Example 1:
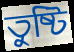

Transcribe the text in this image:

তুষ্টি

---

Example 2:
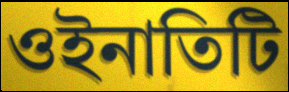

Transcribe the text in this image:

ওইনাতিটি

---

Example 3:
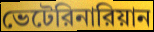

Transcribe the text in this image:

ভেটেরিনারিয়ান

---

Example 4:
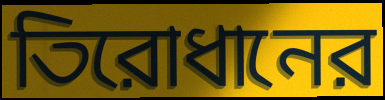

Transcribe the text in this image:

তিরোধানের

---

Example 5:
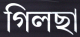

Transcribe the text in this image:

গিলছা